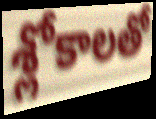
శ్లోకాలతో